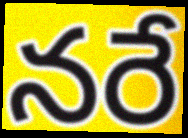
నరే